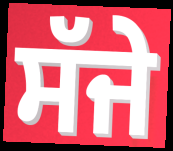
ਸੱਜੇ